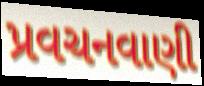
પ્રવચનવાણી